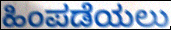
ಹಿಂಪಡೆಯಲು